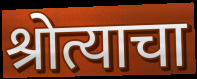
श्रोत्याचा